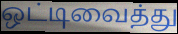
ஒட்டிவைத்து